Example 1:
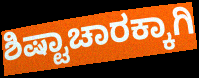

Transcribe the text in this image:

ಶಿಷ್ಟಾಚಾರಕ್ಕಾಗಿ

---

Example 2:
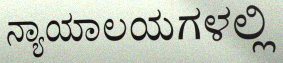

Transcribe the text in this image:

ನ್ಯಾಯಾಲಯಗಳಲ್ಲಿ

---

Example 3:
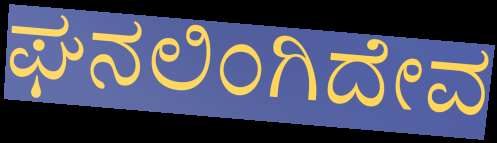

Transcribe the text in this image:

ಘನಲಿಂಗಿದೇವ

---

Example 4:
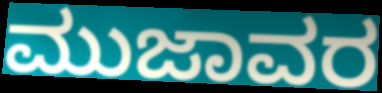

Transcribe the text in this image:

ಮುಜಾವರ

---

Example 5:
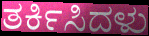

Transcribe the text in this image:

ತರ್ಕಿಸಿದಳು